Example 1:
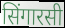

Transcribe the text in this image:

सिंगारसी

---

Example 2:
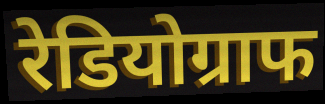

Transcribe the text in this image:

रेडियोग्राफ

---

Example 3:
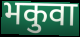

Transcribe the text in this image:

भकुवा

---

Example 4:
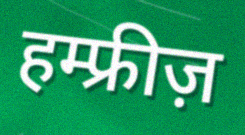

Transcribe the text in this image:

हम्फ्रीज़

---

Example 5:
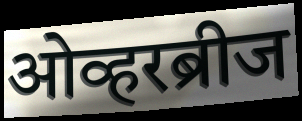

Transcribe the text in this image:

ओव्हरब्रीज